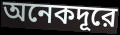
অনেকদূরে